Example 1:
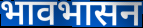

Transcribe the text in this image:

भावभासन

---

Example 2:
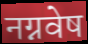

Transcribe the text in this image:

नग्नवेष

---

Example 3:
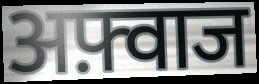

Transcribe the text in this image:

अफ़्वाज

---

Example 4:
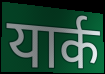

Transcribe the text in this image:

यार्क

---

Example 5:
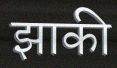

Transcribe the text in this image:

झाकी